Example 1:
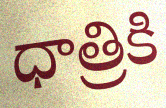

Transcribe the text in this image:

ధాత్రికి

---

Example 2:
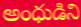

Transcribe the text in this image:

అంధుడిని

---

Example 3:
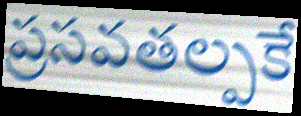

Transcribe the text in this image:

ప్రసవతల్పకే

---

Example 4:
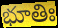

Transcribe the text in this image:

భూతిః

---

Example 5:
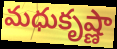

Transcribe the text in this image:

మధుకృష్ణా